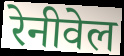
रेनीवेल